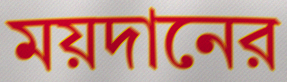
ময়দানের